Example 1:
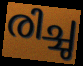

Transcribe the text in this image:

രിച്ചു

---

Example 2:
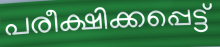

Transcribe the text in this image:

പരീക്ഷിക്കപ്പെട്ട്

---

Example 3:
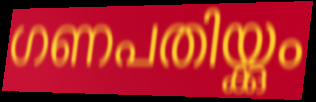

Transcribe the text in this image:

ഗണപതിയ്ക്കും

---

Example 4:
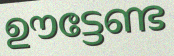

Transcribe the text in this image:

ഊട്ടേണ്ട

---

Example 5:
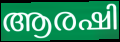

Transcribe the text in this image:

ആരഷി